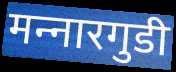
मन्नारगुडी